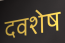
दवशेष